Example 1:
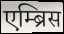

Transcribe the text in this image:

एम्ब्रिस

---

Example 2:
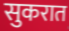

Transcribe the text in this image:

सुकरात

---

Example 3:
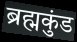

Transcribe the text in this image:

ब्रह्मकुंड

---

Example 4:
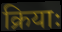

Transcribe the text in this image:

क्रियाः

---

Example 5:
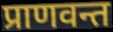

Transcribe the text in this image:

प्राणवन्त